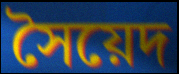
সৈয়েদ